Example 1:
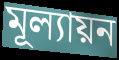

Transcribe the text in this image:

মূল্যায়ন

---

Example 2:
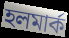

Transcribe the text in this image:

হলমার্ক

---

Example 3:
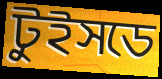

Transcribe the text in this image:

টুইসডে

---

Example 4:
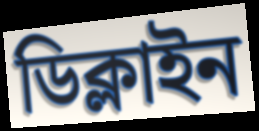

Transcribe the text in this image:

ডিক্লাইন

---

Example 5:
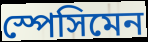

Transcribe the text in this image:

স্পেসিমেন